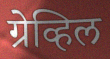
ग्रेव्हिल